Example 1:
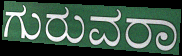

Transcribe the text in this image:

ಗುರುವರಾ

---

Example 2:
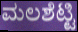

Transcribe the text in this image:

ಮಲಶೆಟ್ಟಿ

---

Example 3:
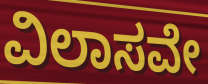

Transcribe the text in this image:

ವಿಲಾಸವೇ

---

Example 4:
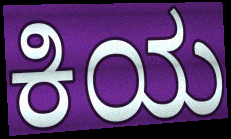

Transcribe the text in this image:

ಕಿಯ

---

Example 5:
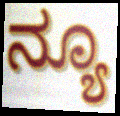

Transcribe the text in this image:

ನ್ಯೂ